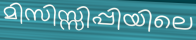
മിസിസ്സിപ്പിയിലെ